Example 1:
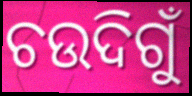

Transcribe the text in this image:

ଚଉଦିଗୁଁ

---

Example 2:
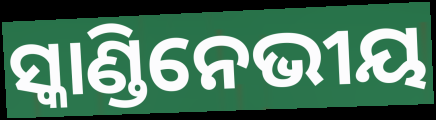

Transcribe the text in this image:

ସ୍କାଣ୍ଡିନେଭୀୟ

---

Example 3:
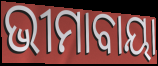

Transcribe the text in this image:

ଭୀମାବାୟା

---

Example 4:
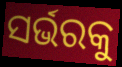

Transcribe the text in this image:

ସର୍ଭରକୁ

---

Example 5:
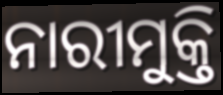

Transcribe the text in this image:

ନାରୀମୁକ୍ତି